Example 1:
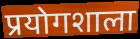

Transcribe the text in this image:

प्रयोगशाला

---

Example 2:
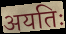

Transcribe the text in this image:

अयतिः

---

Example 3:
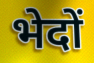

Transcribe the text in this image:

भेदों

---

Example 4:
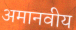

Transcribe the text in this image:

अमानवीय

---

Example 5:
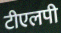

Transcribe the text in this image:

टीएलपी